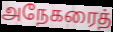
அநேகரைத்